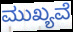
ಮುಖ್ಯವೆ